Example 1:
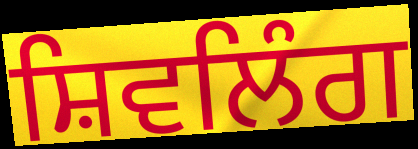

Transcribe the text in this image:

ਸ਼ਿਵਲਿੰਗ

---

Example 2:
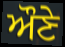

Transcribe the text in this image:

ਔਣੇ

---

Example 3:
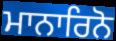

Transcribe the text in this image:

ਮਾਨਾਰਿਨੋ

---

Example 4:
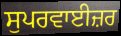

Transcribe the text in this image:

ਸੁਪਰਵਾਈਜ਼ਰ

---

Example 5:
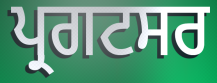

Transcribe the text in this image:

ਪ੍ਰਗਟਸਰ